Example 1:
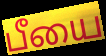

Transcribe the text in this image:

பீயை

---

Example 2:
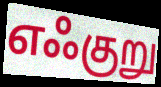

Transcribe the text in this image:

எஃகுறு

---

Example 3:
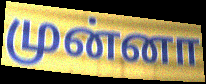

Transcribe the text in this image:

முன்னா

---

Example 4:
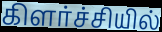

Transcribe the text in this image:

கிளர்ச்சியில்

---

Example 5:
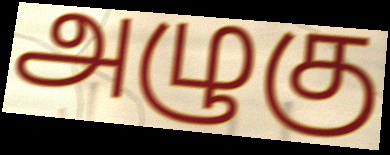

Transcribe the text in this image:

அழுகு